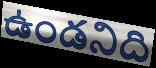
ఉండనిది